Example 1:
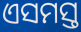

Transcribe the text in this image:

ଏସମସ୍ତ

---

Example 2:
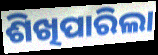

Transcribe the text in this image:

ଶିଖିପାରିଲା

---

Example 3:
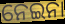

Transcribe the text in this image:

ନେଇନା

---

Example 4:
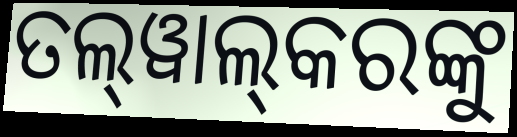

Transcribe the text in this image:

ତଲ୍‌ୱାଲ୍‌କରଙ୍କୁ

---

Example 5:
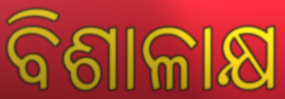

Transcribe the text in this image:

ବିଶାଳାକ୍ଷ